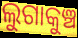
ଲୁଗାକୁଞ୍ଚ